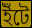
ইঁটে